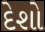
દેશો